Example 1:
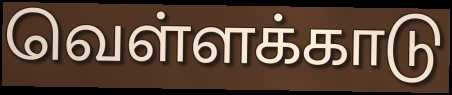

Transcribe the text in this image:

வெள்ளக்காடு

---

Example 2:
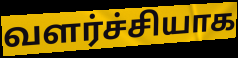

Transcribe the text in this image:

வளர்ச்சியாக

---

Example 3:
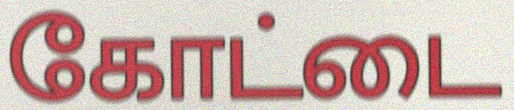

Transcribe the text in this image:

கோட்டை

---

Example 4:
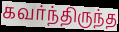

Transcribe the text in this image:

கவர்ந்திருந்த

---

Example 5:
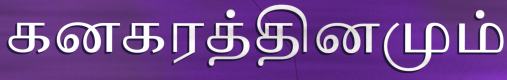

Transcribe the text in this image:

கனகரத்தினமும்